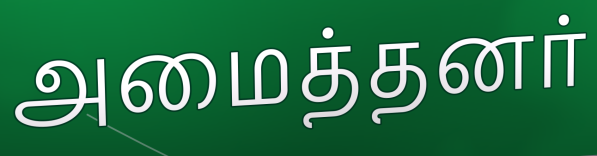
அமைத்தனர்